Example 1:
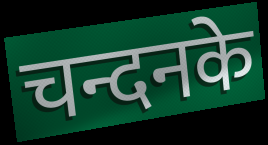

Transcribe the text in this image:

चन्दनके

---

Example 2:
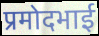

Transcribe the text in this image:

प्रमोदभाई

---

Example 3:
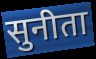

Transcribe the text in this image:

सुनीता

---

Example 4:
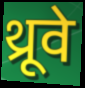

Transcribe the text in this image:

थ्रूवे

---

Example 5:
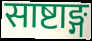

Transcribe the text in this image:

साष्टाङ्ग